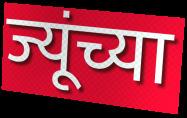
ज्यूंच्या